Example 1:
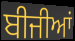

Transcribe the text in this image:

ਬੀਜੀਆਂ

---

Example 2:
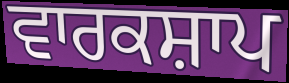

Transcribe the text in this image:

ਵਾਰਕਸ਼ਾਪ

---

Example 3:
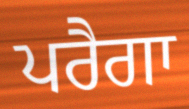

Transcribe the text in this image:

ਪਰੈਗਾ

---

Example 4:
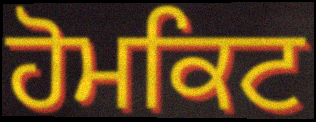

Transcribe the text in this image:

ਹੋਮਕਿਟ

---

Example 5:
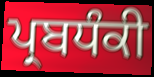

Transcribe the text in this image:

ਪ੍ਰਬਧੰਕੀ